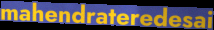
mahendrateredesai